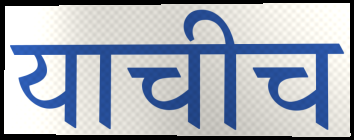
याचीच